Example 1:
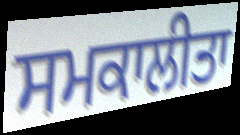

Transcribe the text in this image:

ਸਮਕਾਲੀਤਾ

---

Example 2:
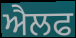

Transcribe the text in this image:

ਐਲਫ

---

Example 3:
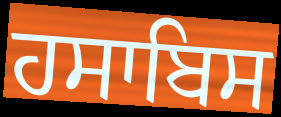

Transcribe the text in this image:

ਹਸਾਬਿਸ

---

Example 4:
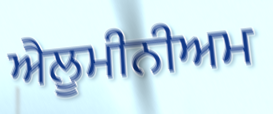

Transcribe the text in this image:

ਐਲੂਮੀਨੀਅਮ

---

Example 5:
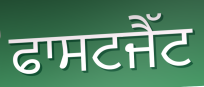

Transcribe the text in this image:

ਫਾਸਟਜੈੱਟ